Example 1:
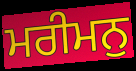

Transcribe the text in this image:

ਮਰੀਮਨੁ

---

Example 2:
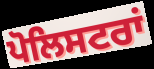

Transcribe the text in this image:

ਪੋਲਿਸਟਰਾਂ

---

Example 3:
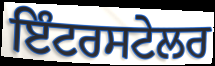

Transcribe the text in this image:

ਇੰਟਰਸਟੇਲਰ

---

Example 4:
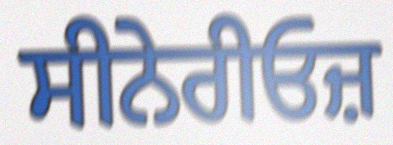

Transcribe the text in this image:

ਸੀਨੇਰੀਓਜ਼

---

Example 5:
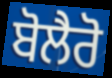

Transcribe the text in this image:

ਬੋਲੈਰੋ